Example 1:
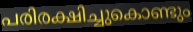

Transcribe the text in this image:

പരിരക്ഷിച്ചുകൊണ്ടും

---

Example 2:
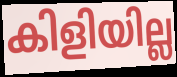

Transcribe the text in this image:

കിളിയില്ല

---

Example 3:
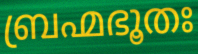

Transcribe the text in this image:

ബ്രഹ്മഭൂതഃ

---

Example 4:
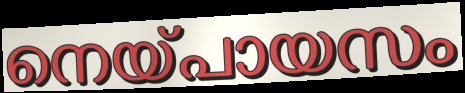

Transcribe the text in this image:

നെയ്പായസം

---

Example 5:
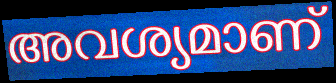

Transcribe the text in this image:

അവശ്യമാണ്